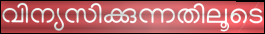
വിന്യസിക്കുന്നതിലൂടെ